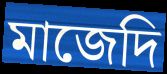
মাজেদি